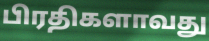
பிரதிகளாவது